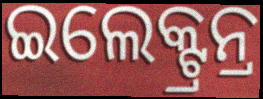
ଇଲେକ୍ଟ୍ରନ୍ର